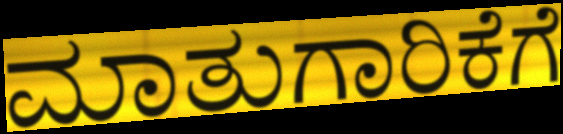
ಮಾತುಗಾರಿಕೆಗೆ